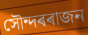
সৌন্দৰৰাজন